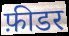
फ़ीडर